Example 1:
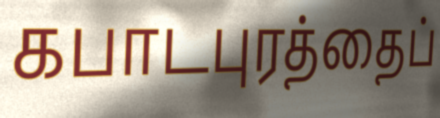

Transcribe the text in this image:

கபாடபுரத்தைப்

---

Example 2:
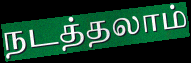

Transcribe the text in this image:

நடத்தலாம்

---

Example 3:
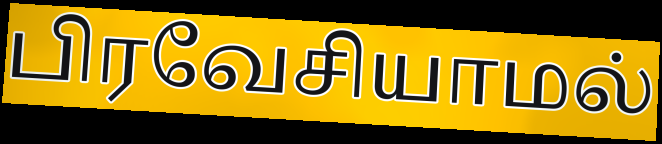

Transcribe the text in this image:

பிரவேசியாமல்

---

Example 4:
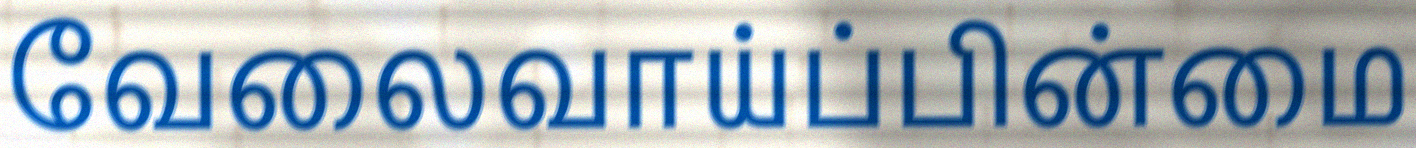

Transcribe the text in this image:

வேலைவாய்ப்பின்மை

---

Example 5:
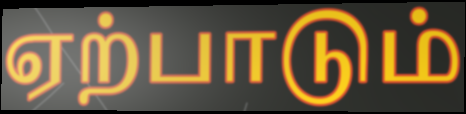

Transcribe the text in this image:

ஏற்பாடும்